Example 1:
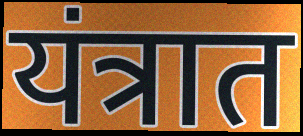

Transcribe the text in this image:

यंत्रात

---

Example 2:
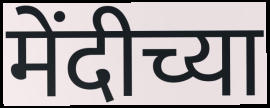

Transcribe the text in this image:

मेंदीच्या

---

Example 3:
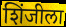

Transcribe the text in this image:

शिंजीला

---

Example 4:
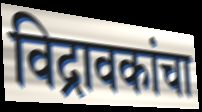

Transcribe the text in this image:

विद्रावकांचा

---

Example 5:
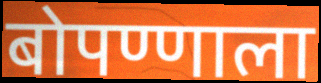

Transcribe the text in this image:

बोपण्णाला